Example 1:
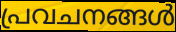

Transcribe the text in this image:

പ്രവചനങ്ങൾ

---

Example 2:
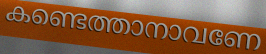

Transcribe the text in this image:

കണ്ടെത്താനാവണേ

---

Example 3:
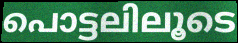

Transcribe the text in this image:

പൊട്ടലിലൂടെ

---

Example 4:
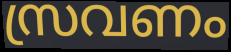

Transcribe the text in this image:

സ്രവണം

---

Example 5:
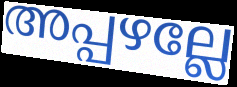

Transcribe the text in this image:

അപ്പഴല്ലേ